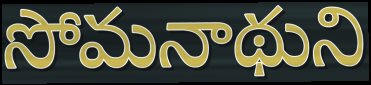
సోమనాథుని